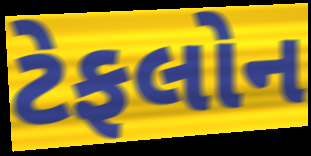
ટેફલોન